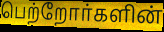
பெற்றோர்களின்